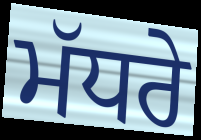
ਮੱਧਰੇ